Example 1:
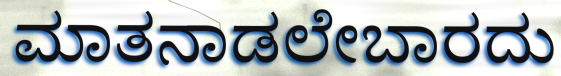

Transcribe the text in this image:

ಮಾತನಾಡಲೇಬಾರದು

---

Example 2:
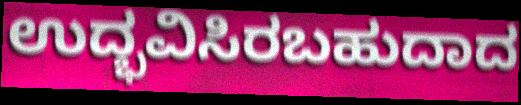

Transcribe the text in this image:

ಉದ್ಭವಿಸಿರಬಹುದಾದ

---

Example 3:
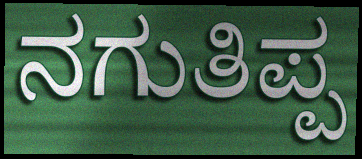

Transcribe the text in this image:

ನಗುತಿಪ್ಪ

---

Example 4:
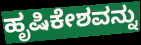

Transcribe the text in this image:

ಹೃಷಿಕೇಶವನ್ನು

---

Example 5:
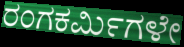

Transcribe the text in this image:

ರಂಗಕರ್ಮಿಗಳೇ